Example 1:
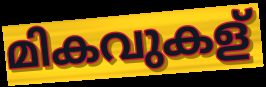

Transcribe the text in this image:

മികവുകള്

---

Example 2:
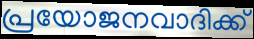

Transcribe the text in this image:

പ്രയോജനവാദിക്ക്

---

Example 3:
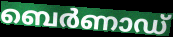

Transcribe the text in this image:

ബെർണാഡ്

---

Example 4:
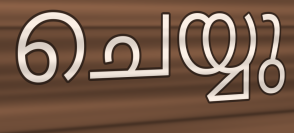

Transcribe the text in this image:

ചെയ്യു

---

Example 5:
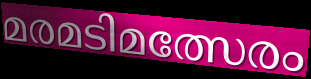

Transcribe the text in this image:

മരമടിമത്സേരം